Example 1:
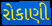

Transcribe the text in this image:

રોકાણી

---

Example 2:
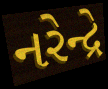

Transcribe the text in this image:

નરેન્દ્રે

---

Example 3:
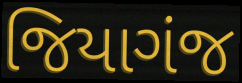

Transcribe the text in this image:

જિયાગંજ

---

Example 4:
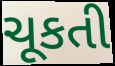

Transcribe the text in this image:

ચૂકતી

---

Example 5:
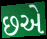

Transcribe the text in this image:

છએ